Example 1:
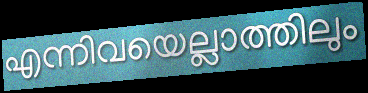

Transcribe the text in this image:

എന്നിവയെല്ലാത്തിലും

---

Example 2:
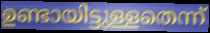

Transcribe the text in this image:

ഉണ്ടായിട്ടുള്ളതെന്ന്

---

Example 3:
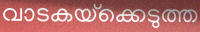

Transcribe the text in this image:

വാടകയ്‌ക്കെടുത്ത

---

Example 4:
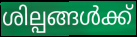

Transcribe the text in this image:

ശില്പങ്ങൾക്ക്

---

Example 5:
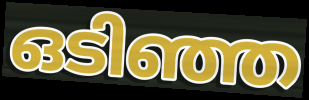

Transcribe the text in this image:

ഒടിഞ്ഞ